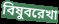
বিষুবরেখা